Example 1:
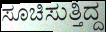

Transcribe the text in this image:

ಸೂಚಿಸುತ್ತಿದ್ದ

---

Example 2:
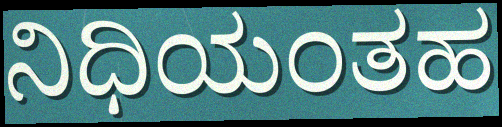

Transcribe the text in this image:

ನಿಧಿಯಂತಹ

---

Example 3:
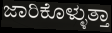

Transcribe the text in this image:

ಜಾರಿಕೊಳ್ಳುತ್ತಾ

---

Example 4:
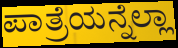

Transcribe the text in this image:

ಪಾತ್ರೆಯನ್ನೆಲ್ಲಾ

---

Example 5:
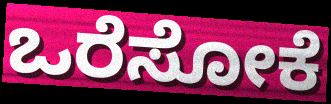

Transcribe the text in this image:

ಒರೆಸೋಕೆ